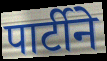
पार्टीने